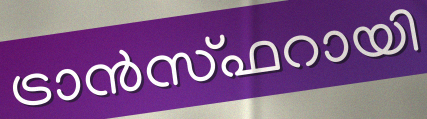
ട്രാൻസ്ഫറായി